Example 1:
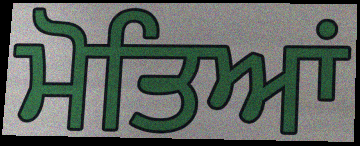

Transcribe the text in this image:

ਮੋਤਿਆਂ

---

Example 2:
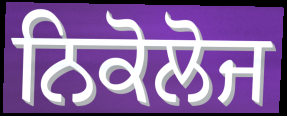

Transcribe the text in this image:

ਨਿਕੋਲੋਜ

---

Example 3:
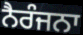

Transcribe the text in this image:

ਨੈਰੰਜਨਾ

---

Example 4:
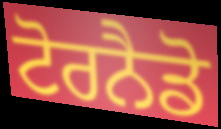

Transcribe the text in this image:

ਟੋਰਨੈਡੋ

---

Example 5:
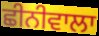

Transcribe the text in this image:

ਛੀਨੀਵਾਲਾ